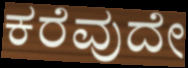
ಕರೆವುದೇ